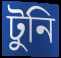
টুনি